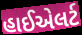
હાઈએલર્ટ